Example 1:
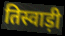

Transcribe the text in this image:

तिस्वाड़ी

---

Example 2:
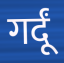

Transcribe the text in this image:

गर्दूं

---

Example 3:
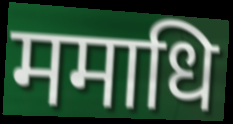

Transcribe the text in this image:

ममाधि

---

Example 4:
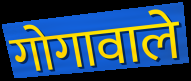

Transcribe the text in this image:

गोगावाले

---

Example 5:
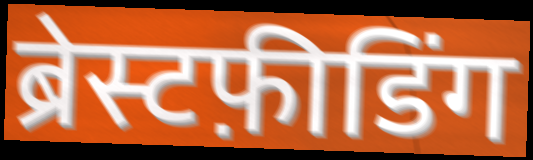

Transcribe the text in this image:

ब्रेस्टफ़ीडिंग